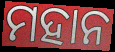
ମହାନ